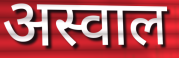
अस्वाल